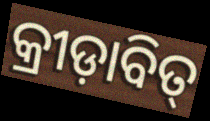
କ୍ରୀଡ଼ାବିତ୍